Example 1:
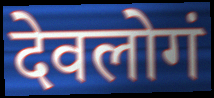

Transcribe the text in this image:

देवलोगं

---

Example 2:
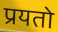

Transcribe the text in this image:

प्रयतो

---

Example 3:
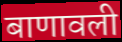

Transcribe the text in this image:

बाणावली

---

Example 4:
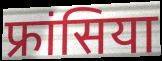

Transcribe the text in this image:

फ्रांसिया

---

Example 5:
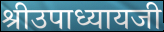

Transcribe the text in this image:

श्रीउपाध्यायजी